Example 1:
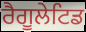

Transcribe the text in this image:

ਰੈਗੂਲੇਟਿਡ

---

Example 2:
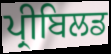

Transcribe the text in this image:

ਪ੍ਰੀਬਿਲਡ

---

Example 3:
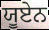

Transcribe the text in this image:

ਯੂਏਨ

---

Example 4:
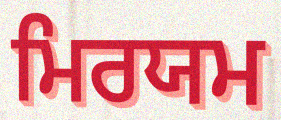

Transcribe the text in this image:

ਮਿਰਯਮ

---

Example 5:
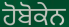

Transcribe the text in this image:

ਹੋਬੋਕੇਨ